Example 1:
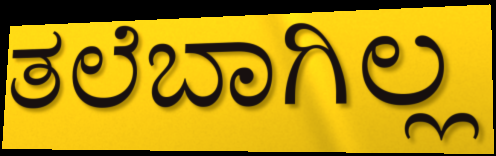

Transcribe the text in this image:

ತಲೆಬಾಗಿಲ್ಲ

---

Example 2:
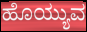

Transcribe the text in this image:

ಹೊಯ್ಯುವ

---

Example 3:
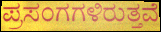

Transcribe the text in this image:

ಪ್ರಸಂಗಗಳಿರುತ್ತವೆ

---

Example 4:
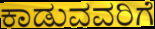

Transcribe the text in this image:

ಕಾಡುವವರಿಗೆ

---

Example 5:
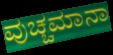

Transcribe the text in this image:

ವುಚ್ಚಮಾನಾ